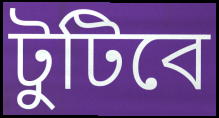
টুটিবে